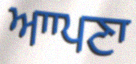
ਆਾਪਣਾ